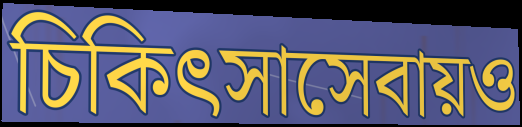
চিকিৎসাসেবায়ও